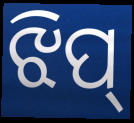
ଝିପ୍